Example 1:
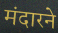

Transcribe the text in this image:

मंदारने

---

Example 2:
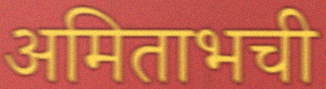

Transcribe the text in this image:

अमिताभची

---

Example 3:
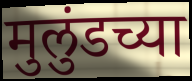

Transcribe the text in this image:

मुलुंडच्या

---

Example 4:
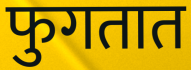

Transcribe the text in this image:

फुगतात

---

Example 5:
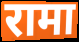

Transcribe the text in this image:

रामा